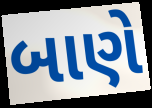
બાણે